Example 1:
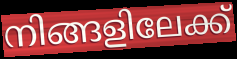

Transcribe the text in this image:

നിങ്ങളിലേക്ക്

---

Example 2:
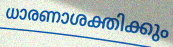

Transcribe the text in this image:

ധാരണാശക്തിക്കും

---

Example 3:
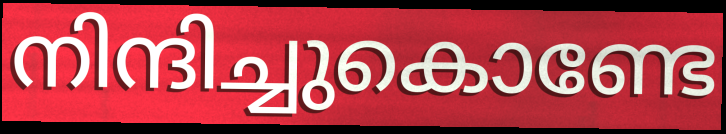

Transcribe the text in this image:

നിന്ദിച്ചുകൊണ്ടേ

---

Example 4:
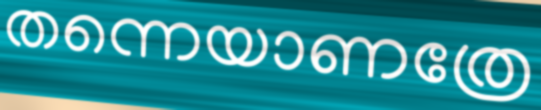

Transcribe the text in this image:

തന്നെയാണത്രേ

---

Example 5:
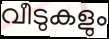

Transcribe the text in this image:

വീടുകളും